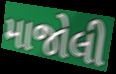
માજોલી